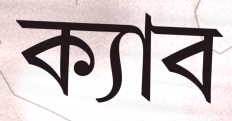
ক্যাব